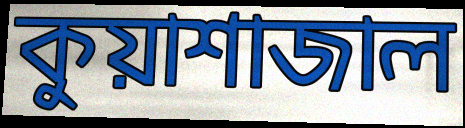
কুয়াশাজাল